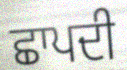
ਛਾਪਦੀ